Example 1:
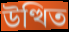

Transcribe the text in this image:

উত্থিত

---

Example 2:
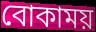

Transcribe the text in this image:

বোকাময়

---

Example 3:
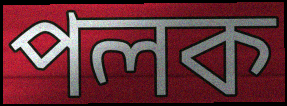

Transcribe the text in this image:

পলক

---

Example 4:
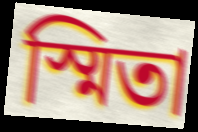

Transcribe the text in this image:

স্মিতা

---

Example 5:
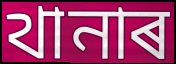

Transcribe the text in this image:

থানাৰ